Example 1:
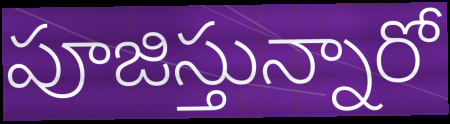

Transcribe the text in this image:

పూజిస్తున్నారో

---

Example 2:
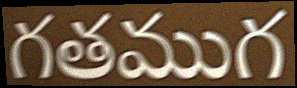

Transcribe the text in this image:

గతముగ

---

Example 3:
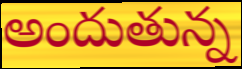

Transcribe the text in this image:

అందుతున్న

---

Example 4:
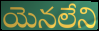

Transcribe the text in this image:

యెనలేని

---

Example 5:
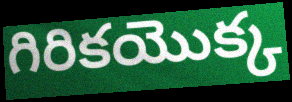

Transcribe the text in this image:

గిరికయొక్క